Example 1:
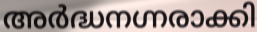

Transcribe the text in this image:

അർദ്ധനഗ്നരാക്കി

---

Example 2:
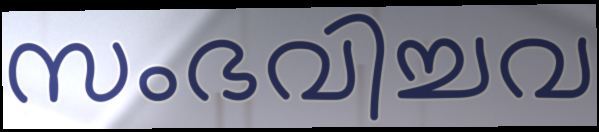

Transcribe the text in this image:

സംഭവിച്ചവ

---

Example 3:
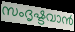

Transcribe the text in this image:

സംദൃഷ്ടവാൻ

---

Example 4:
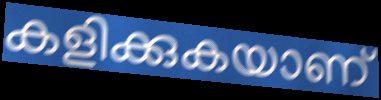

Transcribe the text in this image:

കളിക്കുകയാണ്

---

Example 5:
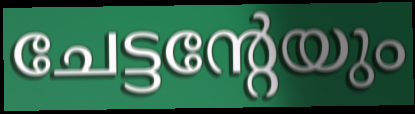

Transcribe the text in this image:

ചേട്ടന്റേയും